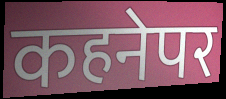
कहनेपर